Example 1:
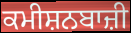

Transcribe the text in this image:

ਕਮੀਸ਼ਨਬਾਜ਼ੀ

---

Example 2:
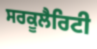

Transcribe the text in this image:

ਸਰਕੂਲੈਰਿਟੀ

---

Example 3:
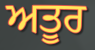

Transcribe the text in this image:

ਅਤੂਰ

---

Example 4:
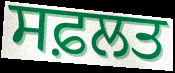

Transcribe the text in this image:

ਸਫ਼ਲਤ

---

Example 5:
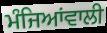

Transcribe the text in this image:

ਮੰਜਿਆਂਵਾਲੀ